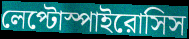
লেপ্টোস্পাইরোসিস